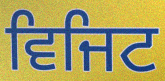
ਵਿਜਿਟ